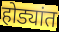
होड्यांत